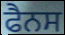
ਫੈਨਸ